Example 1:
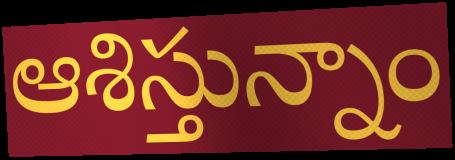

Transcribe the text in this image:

ఆశిస్తున్నాం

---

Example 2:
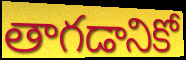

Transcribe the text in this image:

తాగడానికో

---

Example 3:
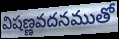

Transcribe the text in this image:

విషణ్ణవదనముతో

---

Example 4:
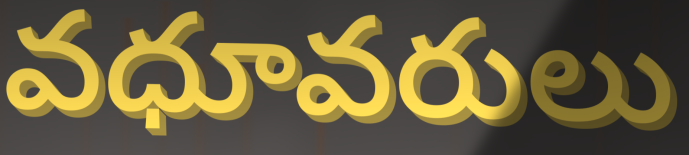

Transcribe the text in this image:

వధూవరులు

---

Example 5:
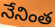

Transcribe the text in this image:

నేనింత